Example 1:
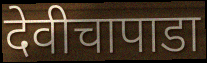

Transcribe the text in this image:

देवीचापाडा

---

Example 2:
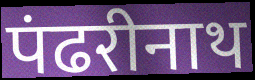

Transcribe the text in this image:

पंढरीनाथ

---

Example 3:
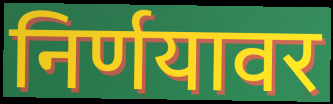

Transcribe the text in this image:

निर्णयावर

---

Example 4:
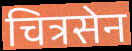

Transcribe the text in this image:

चित्रसेन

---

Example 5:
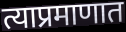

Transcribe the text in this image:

त्याप्रमाणात